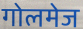
गोलमेज